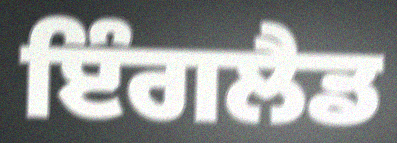
ਇੰਗਲੈਡ